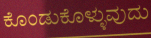
ಕೊಂಡುಕೊಳ್ಳುವುದು